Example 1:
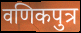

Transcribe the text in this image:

वणिकपुत्र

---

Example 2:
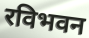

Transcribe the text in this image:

रविभवन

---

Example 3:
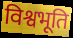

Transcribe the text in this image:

विश्वभूति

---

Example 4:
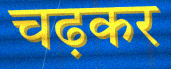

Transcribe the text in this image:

चढ़कर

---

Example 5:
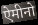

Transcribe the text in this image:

ऐमीनो